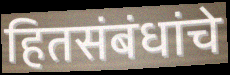
हितसंबंधांचे